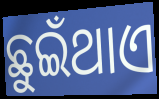
ଛୁଇଁଥାଏ